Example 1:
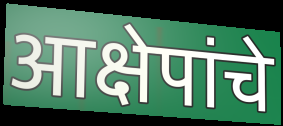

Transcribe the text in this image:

आक्षेपांचे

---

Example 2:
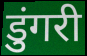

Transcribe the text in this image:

डुंगरी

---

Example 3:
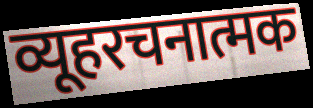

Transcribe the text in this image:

व्यूहरचनात्मक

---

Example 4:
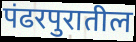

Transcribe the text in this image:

पंढरपुरातील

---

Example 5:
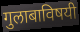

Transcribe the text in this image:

गुलाबाविषयी